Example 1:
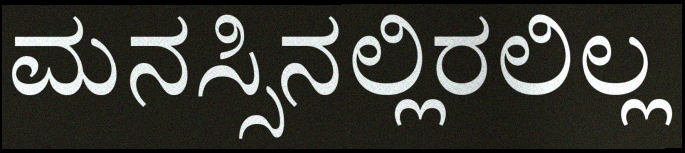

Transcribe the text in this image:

ಮನಸ್ಸಿನಲ್ಲಿರಲಿಲ್ಲ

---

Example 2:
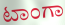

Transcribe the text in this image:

ಟಾಂಗಾ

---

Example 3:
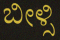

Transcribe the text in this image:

ಬೀಳ್ಸಿ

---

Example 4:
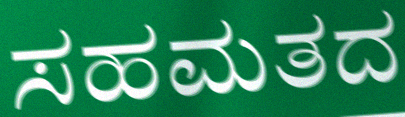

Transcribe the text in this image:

ಸಹಮತದ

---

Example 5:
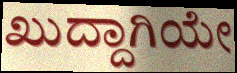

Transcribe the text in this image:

ಖುದ್ದಾಗಿಯೇ